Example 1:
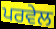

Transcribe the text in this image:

ਪਰਵੇਲ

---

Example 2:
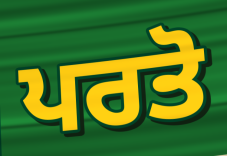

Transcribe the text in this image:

ਪਰਤੋ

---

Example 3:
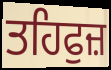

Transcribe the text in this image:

ਤਹਿਫੁਜ਼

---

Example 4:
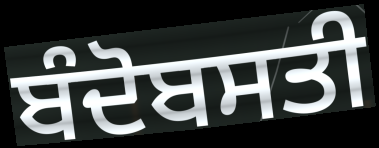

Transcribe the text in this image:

ਬੰਦੋਬਸਤੀ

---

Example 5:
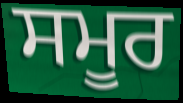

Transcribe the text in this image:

ਸਮੂਰ